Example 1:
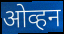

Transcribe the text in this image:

ओव्हन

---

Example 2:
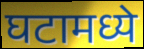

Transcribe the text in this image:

घटामध्ये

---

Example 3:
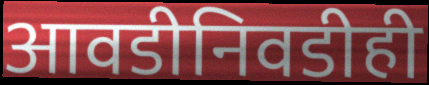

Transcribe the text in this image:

आवडीनिवडीही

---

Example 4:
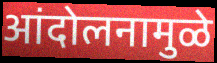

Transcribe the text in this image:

आंदोलनामुळे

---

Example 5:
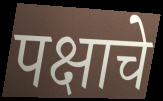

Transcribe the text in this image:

पक्षाचे